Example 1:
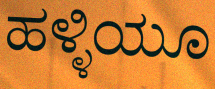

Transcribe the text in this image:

ಹಳ್ಳಿಯೂ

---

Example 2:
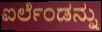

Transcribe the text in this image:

ಐರ್ಲೆಂಡನ್ನು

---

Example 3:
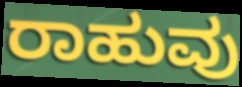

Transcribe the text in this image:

ರಾಹುವು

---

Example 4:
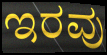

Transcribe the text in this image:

ಇರವು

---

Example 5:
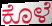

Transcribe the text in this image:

ಕೊಳೆ